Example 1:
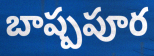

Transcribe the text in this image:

బాష్పపూర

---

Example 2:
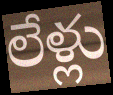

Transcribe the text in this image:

లేళ్లు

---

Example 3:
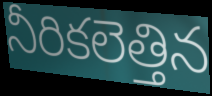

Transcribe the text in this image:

నీరికలెత్తిన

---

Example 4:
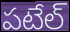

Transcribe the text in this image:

పటేల్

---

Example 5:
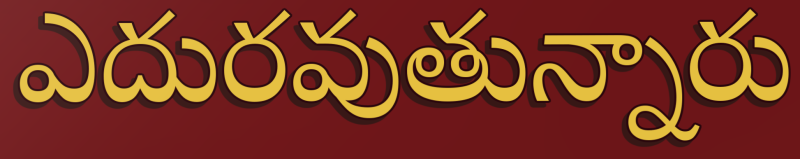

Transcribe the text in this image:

ఎదురవుతున్నారు